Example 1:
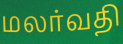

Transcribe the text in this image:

மலர்வதி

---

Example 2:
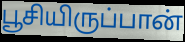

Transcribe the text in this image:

பூசியிருப்பான்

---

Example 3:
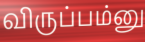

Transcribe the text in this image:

விருப்பம்னு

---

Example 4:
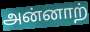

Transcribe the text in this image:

அன்னாற்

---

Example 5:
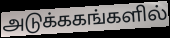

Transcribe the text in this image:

அடுக்ககங்களில்